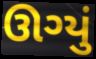
ઊગ્યું